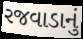
રજવાડાનું